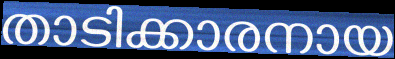
താടിക്കാരനായ